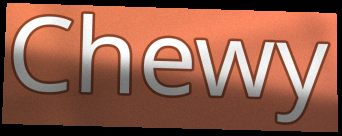
Chewy